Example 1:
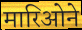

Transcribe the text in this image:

मारिओने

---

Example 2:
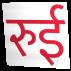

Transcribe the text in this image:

रुई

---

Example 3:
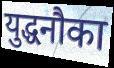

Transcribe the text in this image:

युद्धनौका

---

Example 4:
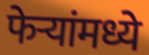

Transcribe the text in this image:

फेऱ्यांमध्ये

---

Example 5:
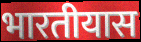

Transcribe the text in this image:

भारतीयास